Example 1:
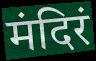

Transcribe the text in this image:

मंदिरं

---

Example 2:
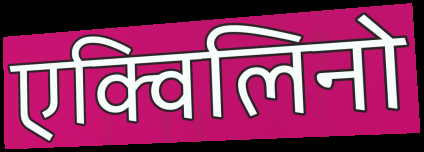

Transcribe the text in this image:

एक्विलिनो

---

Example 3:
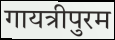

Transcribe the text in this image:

गायत्रीपुरम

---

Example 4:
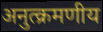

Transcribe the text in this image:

अनुत्क्रमणीय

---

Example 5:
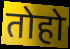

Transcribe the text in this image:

तोहो